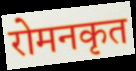
रोमनकृत